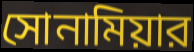
সোনামিয়ার